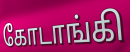
கோடாங்கி